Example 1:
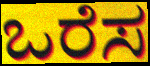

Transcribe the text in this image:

ಒರೆಸ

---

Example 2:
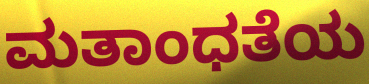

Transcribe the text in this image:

ಮತಾಂಧತೆಯ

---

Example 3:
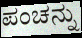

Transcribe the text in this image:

ಪಂಚನ್ನು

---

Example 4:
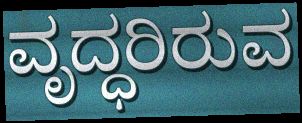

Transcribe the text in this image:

ವೃದ್ಧರಿರುವ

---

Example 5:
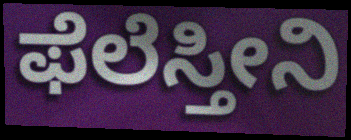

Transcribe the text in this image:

ಫೆಲೆಸ್ತೀನಿ